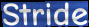
Stride